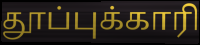
தூப்புக்காரி